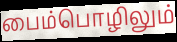
பைம்பொழிலும்